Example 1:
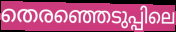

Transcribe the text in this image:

തെരഞ്ഞെടുപ്പിലെ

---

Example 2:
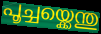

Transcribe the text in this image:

പൂച്ചയ്ക്കെന്തു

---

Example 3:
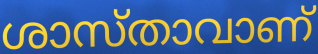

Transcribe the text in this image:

ശാസ്താവാണ്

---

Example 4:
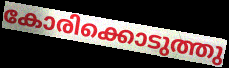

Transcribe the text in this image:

കോരിക്കൊടുത്തു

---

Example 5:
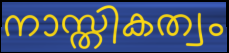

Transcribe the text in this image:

നാസ്തികത്വം